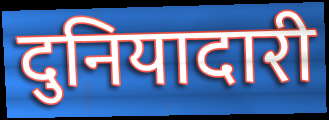
दुनियादारी